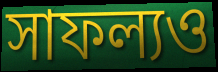
সাফল্যও